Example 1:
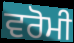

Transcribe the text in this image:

ਵਰੋਮੀ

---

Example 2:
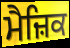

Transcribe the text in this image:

ਮੈਜ਼ਿਕ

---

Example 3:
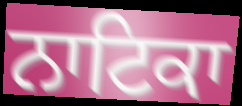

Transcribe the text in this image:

ਨਾਟਿਕਾ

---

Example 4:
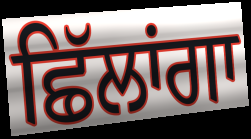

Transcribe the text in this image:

ਛਿੱਲਾਂਗਾ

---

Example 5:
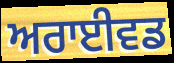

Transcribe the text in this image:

ਅਰਾਈਵਡ